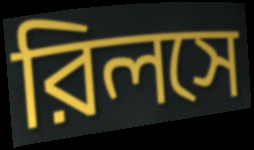
রিলসে